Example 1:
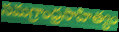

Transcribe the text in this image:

సమగ్రాంధ్రసాహిత్యం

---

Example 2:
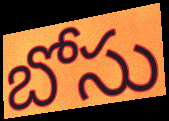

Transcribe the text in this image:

బోసు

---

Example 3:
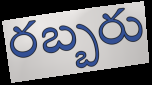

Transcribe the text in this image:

రబ్బరు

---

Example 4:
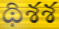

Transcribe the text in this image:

థిశశ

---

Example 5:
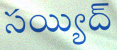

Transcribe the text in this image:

సయ్యిద్